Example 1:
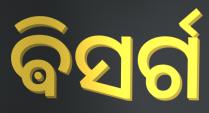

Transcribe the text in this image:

ଵିସର୍ଗ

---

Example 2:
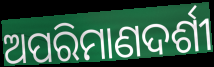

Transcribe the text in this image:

ଅପରିମାଣଦର୍ଶୀ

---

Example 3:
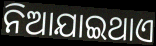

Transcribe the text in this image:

ନିଆଯାଇଥାଏ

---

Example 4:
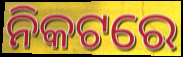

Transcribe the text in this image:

ନିକଟରେ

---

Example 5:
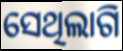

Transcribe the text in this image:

ସେଥିଲାଗି